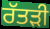
ਰੱਤੜੀ